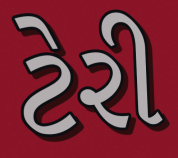
ટેરી